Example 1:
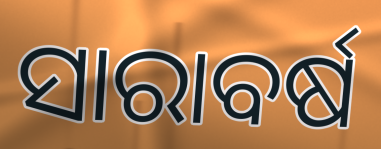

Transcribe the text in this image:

ସାରାବର୍ଷ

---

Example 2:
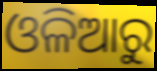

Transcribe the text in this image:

ଓଳିଆରୁ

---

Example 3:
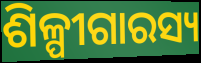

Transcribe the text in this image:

ଶିଳ୍ପୀଗାରସ୍ୟ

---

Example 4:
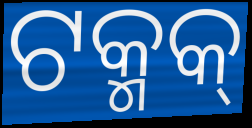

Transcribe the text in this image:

ଟକ୍ମକ୍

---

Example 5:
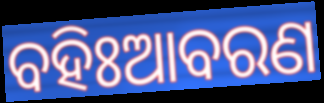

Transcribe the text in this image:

ବହିଃଆବରଣ